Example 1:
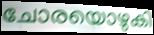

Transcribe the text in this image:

ചോരയൊഴുകി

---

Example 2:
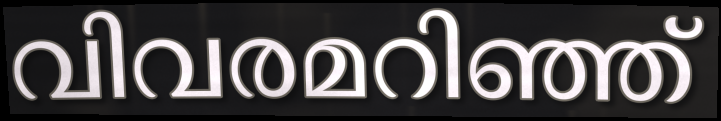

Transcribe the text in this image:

വിവരമറിഞ്ഞ്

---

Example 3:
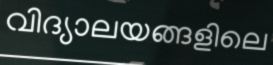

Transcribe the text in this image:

വിദ്യാലയങ്ങളിലെ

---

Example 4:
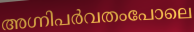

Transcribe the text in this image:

അഗ്നിപർവതംപോലെ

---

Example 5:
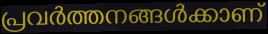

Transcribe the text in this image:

പ്രവർത്തനങ്ങൾക്കാണ്